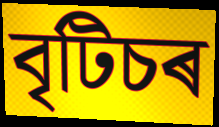
বৃটিচৰ